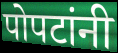
पोपटांनी